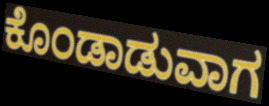
ಕೊಂಡಾಡುವಾಗ